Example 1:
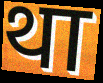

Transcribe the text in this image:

था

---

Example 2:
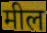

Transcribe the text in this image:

मील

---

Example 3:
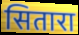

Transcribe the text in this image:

सितारा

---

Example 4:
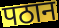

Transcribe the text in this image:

पठान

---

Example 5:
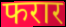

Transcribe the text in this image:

फरार